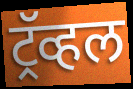
ट्रॅव्हल